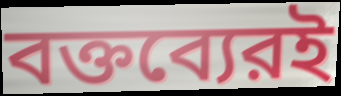
বক্তব্যেরই